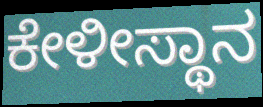
ಕೇಳೀಸ್ಥಾನ